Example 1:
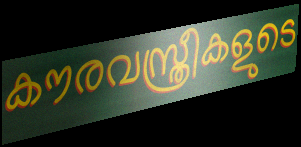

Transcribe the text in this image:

കൗരവസ്ത്രീകളുടെ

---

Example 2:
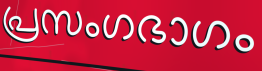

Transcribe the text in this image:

പ്രസംഗഭാഗം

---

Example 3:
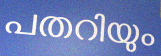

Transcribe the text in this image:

പതറിയും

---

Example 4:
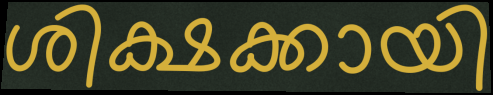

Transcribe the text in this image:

ശിക്ഷക്കായി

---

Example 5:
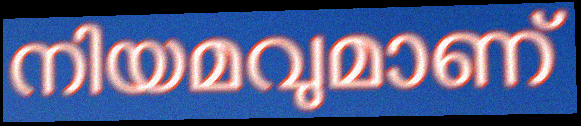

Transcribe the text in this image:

നിയമവുമാണ്